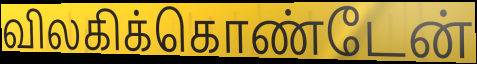
விலகிக்கொண்டேன்